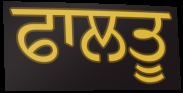
ਫਾਲਤੂ